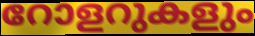
റോളറുകളും